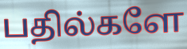
பதில்களே